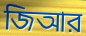
জিআর